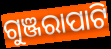
ଗୁଞ୍ଜରାପାଟି